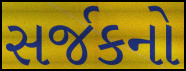
સર્જકનો